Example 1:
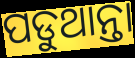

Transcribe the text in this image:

ପଡୁଥାନ୍ତା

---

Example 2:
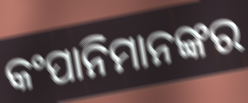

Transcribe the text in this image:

କଂପାନିମାନଙ୍କର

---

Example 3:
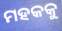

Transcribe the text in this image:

ମହକକୁ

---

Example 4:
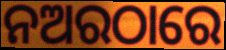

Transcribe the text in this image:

ନଅରଠାରେ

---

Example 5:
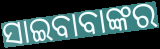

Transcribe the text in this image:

ସାଇବାବାଙ୍କର